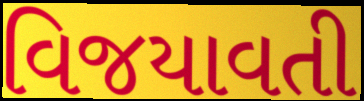
વિજયાવતી